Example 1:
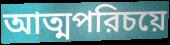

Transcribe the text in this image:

আত্মপরিচয়ে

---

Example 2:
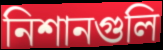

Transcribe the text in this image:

নিশানগুলি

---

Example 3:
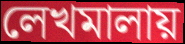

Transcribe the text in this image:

লেখমালায়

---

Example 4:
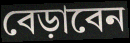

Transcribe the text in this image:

বেড়াবেন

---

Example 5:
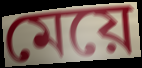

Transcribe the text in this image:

মেয়ে